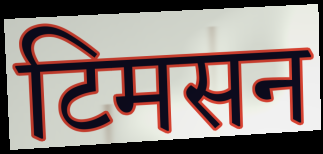
टिमसन